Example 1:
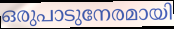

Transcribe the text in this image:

ഒരുപാടുനേരമായി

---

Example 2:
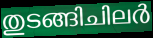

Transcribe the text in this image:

തുടങ്ങിചിലർ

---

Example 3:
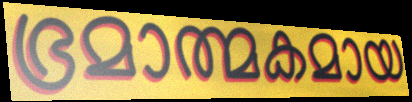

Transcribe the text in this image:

ഭ്രമാത്മകമായ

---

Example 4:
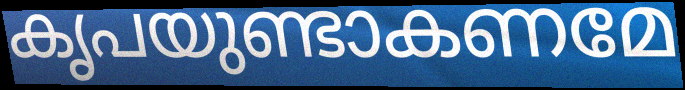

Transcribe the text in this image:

കൃപയുണ്ടാകണമേ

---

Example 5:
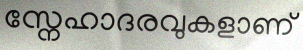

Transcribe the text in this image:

സ്നേഹാദരവുകളാണ്